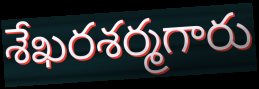
శేఖరశర్మగారు